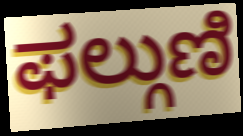
ಫಲ್ಗುಣಿ